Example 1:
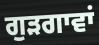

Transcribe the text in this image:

ਗੁੜਗਾਵਾਂ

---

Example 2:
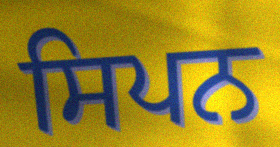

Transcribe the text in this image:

ਸਿਪਨ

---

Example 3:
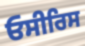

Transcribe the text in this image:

ਓਸੀਰਿਸ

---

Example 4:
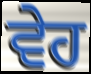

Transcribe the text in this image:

ਵੇਹ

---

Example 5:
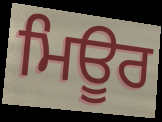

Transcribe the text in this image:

ਮਿਊਰ